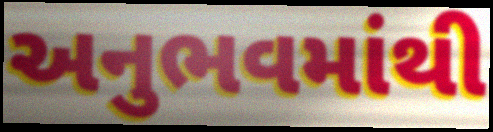
અનુભવમાંથી